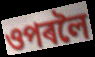
ওপৰলৈ